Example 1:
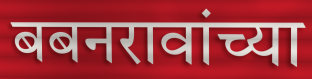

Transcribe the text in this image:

बबनरावांच्या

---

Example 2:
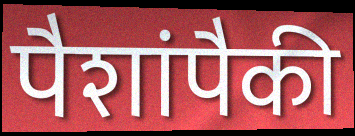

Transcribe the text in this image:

पैशांपैकी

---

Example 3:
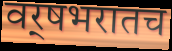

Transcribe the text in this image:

वर्षभरातच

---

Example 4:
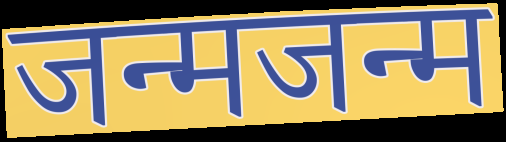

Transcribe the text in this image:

जन्मजन्म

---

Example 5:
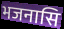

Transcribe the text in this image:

भजनासि